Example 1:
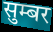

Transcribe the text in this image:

सुम्बर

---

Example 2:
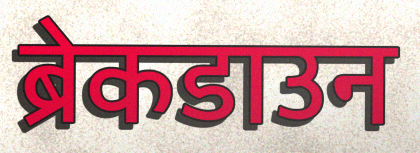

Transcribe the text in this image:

ब्रेकडाउन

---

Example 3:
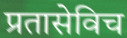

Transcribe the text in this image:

प्रतासेविच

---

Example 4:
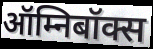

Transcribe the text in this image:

ऑम्निबॉक्स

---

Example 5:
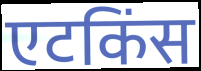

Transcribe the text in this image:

एटकिंस